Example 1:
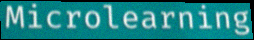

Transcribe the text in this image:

Microlearning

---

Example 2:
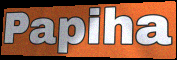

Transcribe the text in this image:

Papiha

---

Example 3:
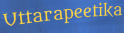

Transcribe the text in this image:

Uttarapeetika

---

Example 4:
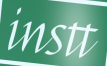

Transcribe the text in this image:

instt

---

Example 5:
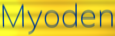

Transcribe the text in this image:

Myoden